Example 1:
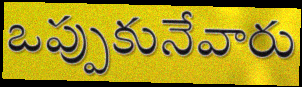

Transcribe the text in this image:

ఒప్పుకునేవారు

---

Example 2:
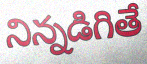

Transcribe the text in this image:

నిన్నడిగితే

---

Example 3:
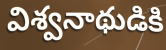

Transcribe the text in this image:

విశ్వనాథుడికి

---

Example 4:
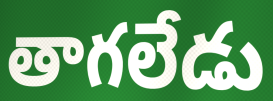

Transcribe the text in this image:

తాగలేడు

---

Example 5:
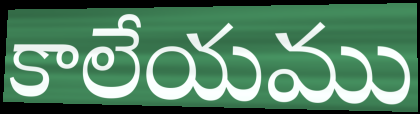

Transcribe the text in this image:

కాలేయము